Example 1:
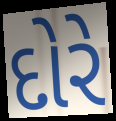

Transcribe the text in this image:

દોરે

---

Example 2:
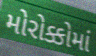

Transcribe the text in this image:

મોરોક્કોમાં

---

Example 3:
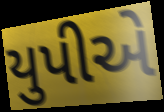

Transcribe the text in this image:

યુપીએ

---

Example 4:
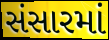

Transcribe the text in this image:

સંસારમાં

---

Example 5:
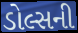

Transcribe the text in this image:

ડોલ્સની